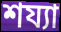
শয্যা